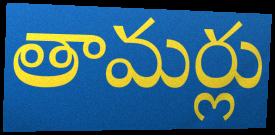
తామర్లు